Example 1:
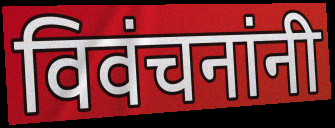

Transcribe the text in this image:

विवंचनांनी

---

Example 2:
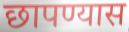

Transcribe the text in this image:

छापण्यास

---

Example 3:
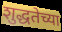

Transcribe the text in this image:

शुद्धतेच्या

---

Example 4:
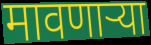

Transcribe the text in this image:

मावणाऱ्या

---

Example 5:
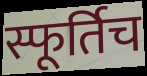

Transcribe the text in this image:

स्फूर्तिच